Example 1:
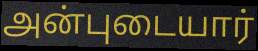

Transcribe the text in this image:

அன்புடையார்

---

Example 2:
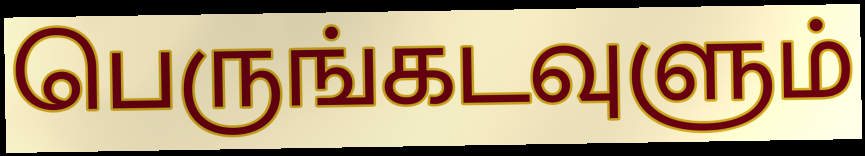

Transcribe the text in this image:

பெருங்கடவுளும்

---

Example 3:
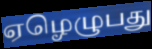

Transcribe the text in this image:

ஏழெழுபது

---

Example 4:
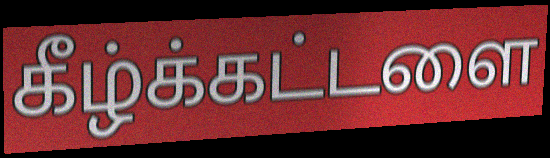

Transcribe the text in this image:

கீழ்க்கட்டளை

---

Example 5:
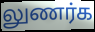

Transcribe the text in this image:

லுணர்க